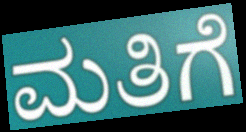
ಮತಿಗೆ